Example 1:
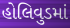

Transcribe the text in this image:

હોલિવુડમાં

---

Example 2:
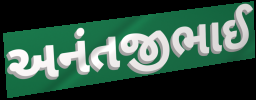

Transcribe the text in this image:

અનંતજીભાઈ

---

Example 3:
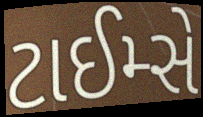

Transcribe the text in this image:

ટાઈમ્સે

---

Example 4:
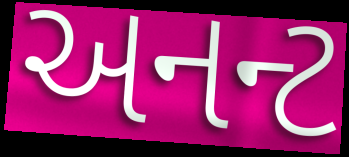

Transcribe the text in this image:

અનન્ટ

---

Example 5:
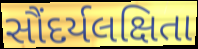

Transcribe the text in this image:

સૌંદર્યલક્ષિતા